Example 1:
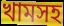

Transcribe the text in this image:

খামসহ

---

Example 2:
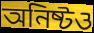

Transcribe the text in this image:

অনিষ্টও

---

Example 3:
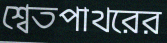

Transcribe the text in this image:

শ্বেতপাথরের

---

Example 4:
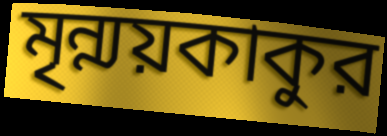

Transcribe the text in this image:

মৃন্ময়কাকুর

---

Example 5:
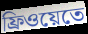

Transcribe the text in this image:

ফ্রিওয়েতে